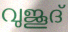
വുജൂദ്